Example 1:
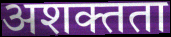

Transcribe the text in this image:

अशक्‍तता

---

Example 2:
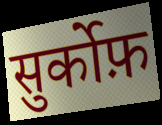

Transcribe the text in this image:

सुर्कोफ़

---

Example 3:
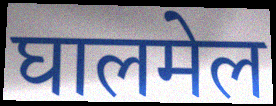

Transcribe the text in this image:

घालमेल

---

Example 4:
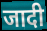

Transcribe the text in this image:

जादी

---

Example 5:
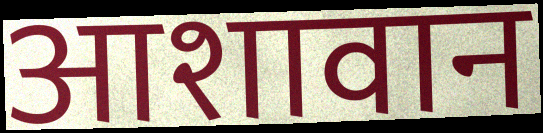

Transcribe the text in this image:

आशावान